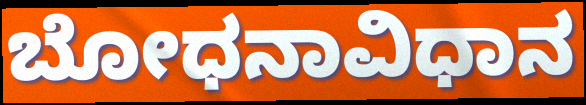
ಬೋಧನಾವಿಧಾನ